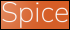
Spice